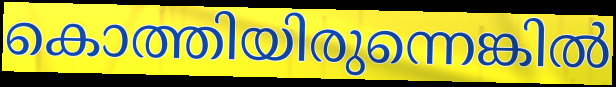
കൊത്തിയിരുന്നെങ്കിൽ